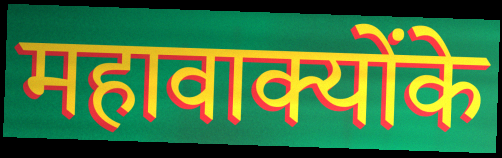
महावाक्योंके